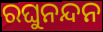
ରଘୁନନ୍ଦନ